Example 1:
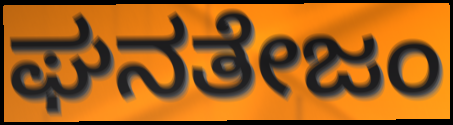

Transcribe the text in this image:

ಘನತೇಜಂ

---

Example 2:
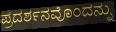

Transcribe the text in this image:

ಪ್ರದರ್ಶನವೊಂದನ್ನು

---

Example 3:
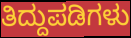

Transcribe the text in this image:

ತಿದ್ದುಪಡಿಗಳು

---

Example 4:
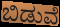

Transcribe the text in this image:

ಬಿಡುವೆ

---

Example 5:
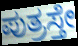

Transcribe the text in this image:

ಪುತ್ರಸ್ತೇ